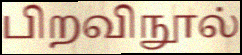
பிறவிநூல்